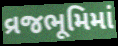
વ્રજભૂમિમાં